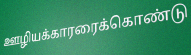
ஊழியக்காரரைக்கொண்டு